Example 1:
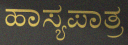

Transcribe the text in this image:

ಹಾಸ್ಯಪಾತ್ರ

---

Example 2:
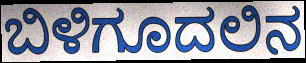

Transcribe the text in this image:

ಬಿಳಿಗೂದಲಿನ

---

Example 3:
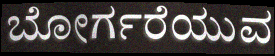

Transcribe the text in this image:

ಬೋರ್ಗರೆಯುವ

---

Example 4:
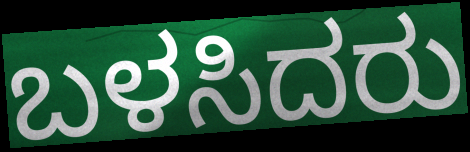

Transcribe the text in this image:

ಬಳಸಿದರು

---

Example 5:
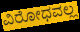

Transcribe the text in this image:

ವಿರೋಧವಲ್ಲ